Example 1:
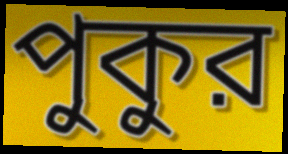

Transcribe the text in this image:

পুকুর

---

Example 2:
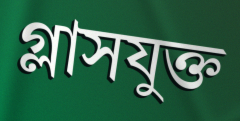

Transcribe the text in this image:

গ্লাসযুক্ত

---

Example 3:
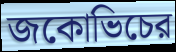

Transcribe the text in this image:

জকোভিচের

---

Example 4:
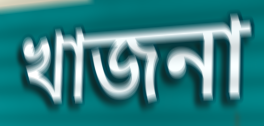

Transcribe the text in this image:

খাজনা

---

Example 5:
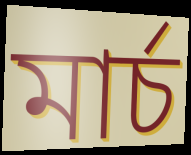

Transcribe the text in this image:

মার্চ